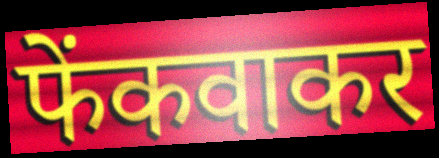
फेंकवाकर